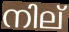
നില്